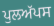
ਪੁਲਅੱਪਸ